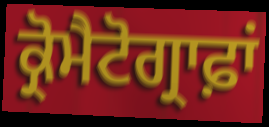
ਕ੍ਰੋਮੈਟੋਗ੍ਰਾਫ਼ਾਂ